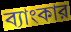
ব্যাংকার